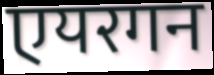
एयरगन